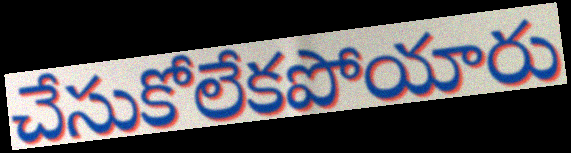
చేసుకోలేకపోయారు